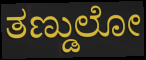
ತಣ್ಡುಲೋ